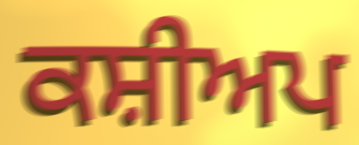
ਕਸ਼ੀਅਪ